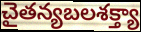
చైతన్యబలశక్త్యా